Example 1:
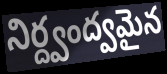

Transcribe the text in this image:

నిర్ద్వంద్వమైన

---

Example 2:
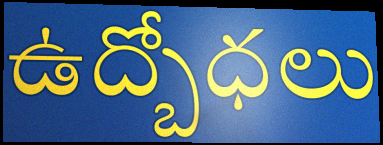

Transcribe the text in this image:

ఉద్బోధలు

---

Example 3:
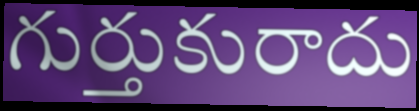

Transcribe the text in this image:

గుర్తుకురాదు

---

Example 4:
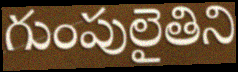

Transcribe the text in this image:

గుంపులైతిని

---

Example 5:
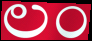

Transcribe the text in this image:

లం